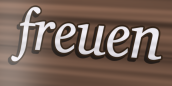
freuen